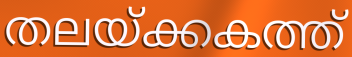
തലയ്ക്കകത്ത്